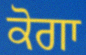
ਕੋਗਾ